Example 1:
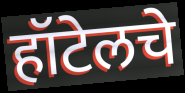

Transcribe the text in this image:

हॉटेलचे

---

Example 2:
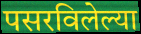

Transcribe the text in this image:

पसरविलेल्या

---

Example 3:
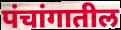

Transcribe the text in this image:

पंचांगातील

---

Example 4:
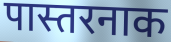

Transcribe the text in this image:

पास्तरनाक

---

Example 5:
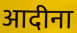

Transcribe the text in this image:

आदीना